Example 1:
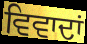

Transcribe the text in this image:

ਵਿਵਾਦਾਂ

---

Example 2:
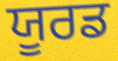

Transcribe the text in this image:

ਯੂਰਡ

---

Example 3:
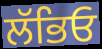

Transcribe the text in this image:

ਲੱਭਿਓ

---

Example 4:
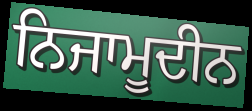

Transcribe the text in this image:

ਨਿਜਾਮੂਦੀਨ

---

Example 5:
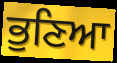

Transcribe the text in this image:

ਭੁਣਿਆ